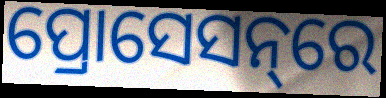
ପ୍ରୋସେସନ୍‌ରେ